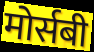
मोर्सबी